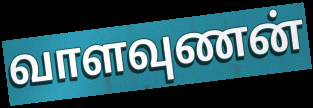
வாளவுணன்